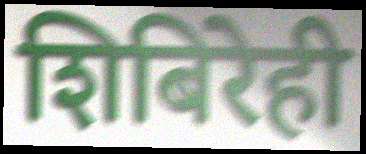
शिबिरेही